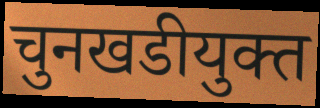
चुनखडीयुक्त